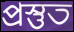
প্ৰস্তুত